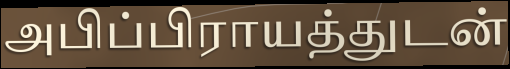
அபிப்பிராயத்துடன்